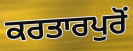
ਕਰਤਾਰਪੁਰੋਂ